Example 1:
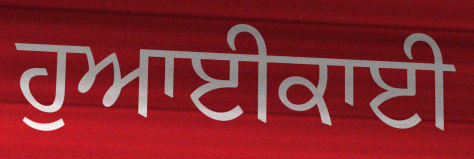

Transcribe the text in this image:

ਹੁਆਈਕਾਈ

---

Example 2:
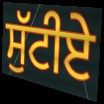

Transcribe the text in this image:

ਸੁੱਟੀਏ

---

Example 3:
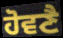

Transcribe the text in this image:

ਹੋਵਣੈ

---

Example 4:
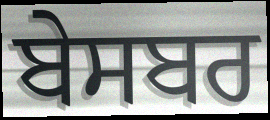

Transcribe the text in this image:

ਬੇਸਬਰ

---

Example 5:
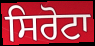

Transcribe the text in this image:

ਸਿਰੋਟਾ